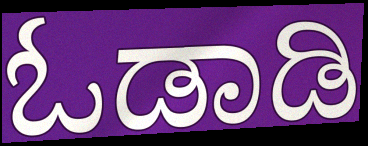
ಓಡಾಡಿ